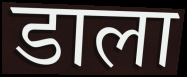
डाला